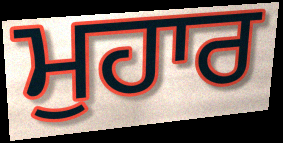
ਮੁਹਾਰ